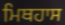
ਮਿਥਹਾਸ